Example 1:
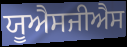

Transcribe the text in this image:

ਯੂਐਸਜੀਐਸ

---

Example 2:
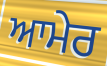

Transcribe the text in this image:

ਆਮੇਰ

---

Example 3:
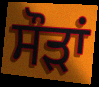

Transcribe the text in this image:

ਸੌੜਾਂ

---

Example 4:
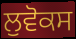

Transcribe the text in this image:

ਲੁਵੋਕਸ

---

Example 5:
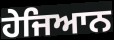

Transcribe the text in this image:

ਹੇਜਿਆਨ